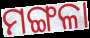
ମଙ୍ଗଳା